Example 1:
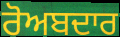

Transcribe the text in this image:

ਰੋਅਬਦਾਰ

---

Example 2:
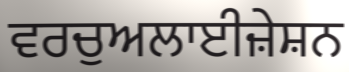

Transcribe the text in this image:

ਵਰਚੁਅਲਾਈਜ਼ੇਸ਼ਨ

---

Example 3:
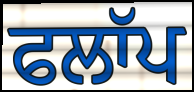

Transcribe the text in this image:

ਫਲਾੱਪ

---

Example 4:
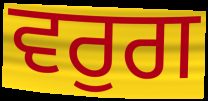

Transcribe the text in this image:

ਵਰੁਗ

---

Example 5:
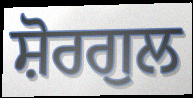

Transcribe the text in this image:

ਸ਼ੋਰਗੁਲ